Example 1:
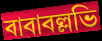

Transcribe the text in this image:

বাবাবল্লভি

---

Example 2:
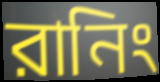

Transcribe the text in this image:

রানিং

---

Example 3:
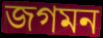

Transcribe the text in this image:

জগমন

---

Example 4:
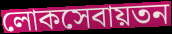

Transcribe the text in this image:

লোকসেবায়তন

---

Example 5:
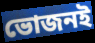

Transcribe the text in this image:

ভোজনই